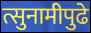
त्सुनामीपुढे